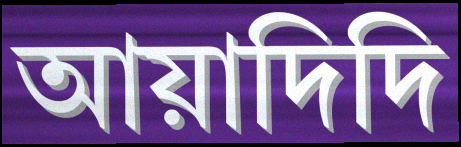
আয়াদিদি